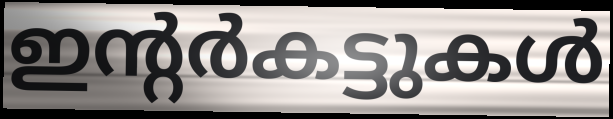
ഇന്റർകട്ടുകൾ